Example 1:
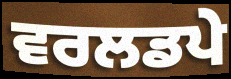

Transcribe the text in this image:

ਵਰਲਡਪੇ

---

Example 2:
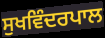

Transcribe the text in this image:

ਸੁਖਵਿੰਦਰਪਾਲ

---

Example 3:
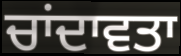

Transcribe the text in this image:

ਚਾਂਦਾਵਤਾ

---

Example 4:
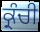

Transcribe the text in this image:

ਕ੍ਰੰਚੀ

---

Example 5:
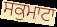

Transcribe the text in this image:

ਸਕੁਮਾਟਾ